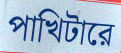
পাখিটারে